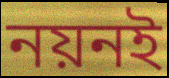
নয়নই